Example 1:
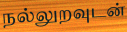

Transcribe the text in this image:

நல்லுறவுடன்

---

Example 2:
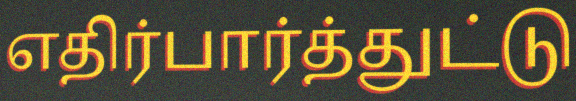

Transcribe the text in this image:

எதிர்பார்த்துட்டு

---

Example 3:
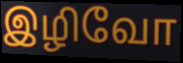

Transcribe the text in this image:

இழிவோ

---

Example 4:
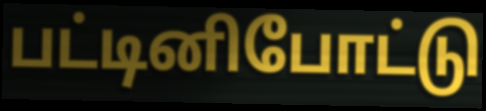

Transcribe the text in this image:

பட்டினிபோட்டு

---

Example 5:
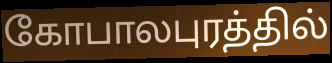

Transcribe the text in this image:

கோபாலபுரத்தில்